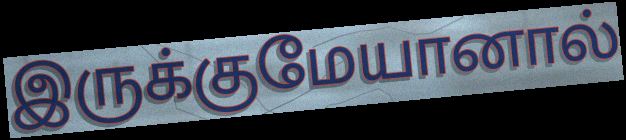
இருக்குமேயானால்